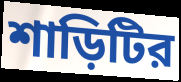
শাড়িটির